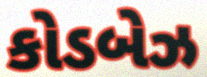
કોડબેઝ